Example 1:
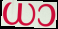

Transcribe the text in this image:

ധാ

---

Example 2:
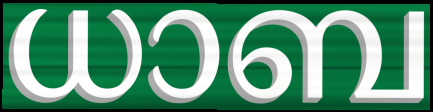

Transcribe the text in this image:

ധാബ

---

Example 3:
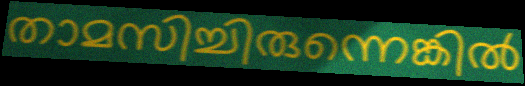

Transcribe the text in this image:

താമസിച്ചിരുന്നെങ്കിൽ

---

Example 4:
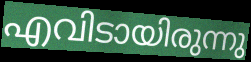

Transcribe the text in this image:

എവിടായിരുന്നു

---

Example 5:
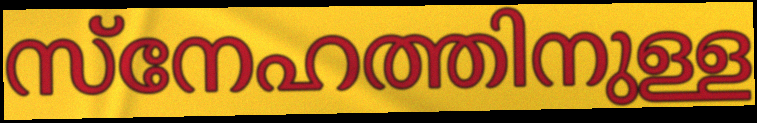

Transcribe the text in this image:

സ്നേഹത്തിനുള്ള